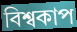
বিশ্বকাপ